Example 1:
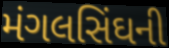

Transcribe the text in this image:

મંગલસિંઘની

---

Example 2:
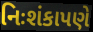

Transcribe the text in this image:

નિઃશંકાપણે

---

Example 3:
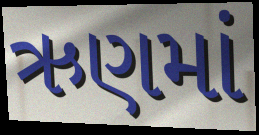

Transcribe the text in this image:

ઋણમાં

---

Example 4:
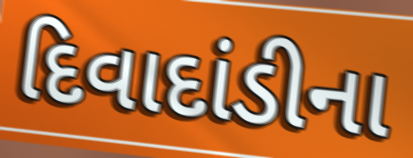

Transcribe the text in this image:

દિવાદાંડીના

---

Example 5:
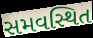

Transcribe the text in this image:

સમવસ્થિત